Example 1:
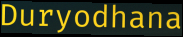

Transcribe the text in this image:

Duryodhana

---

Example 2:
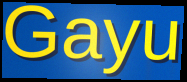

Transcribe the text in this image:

Gayu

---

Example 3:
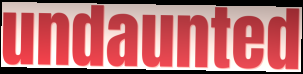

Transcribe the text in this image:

undaunted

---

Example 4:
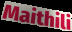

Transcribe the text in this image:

Maithili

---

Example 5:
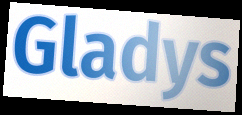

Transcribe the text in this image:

Gladys